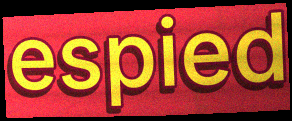
espied